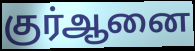
குர்ஆனை